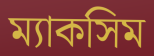
ম্যাকসিম